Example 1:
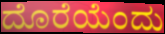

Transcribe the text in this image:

ದೊರೆಯೆಂದು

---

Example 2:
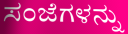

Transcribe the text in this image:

ಸಂಜೆಗಳನ್ನು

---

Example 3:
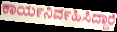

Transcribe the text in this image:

ಕಾರ್ಯನಿರ್ವಹಿಸಿದ್ದಾರೆ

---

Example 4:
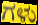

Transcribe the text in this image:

ಗಳು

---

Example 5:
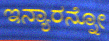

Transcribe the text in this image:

ಇನ್ಯಾರನ್ನೋ